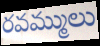
రవమ్ములు